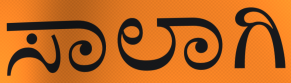
ಸಾಲಾಗಿ